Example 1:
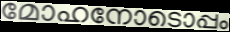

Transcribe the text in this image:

മോഹനോടൊപ്പം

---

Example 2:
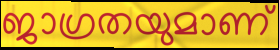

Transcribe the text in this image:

ജാഗ്രതയുമാണ്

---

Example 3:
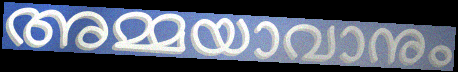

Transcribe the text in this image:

അമ്മയാവാനും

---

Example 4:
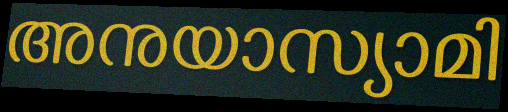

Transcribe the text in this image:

അനുയാസ്യാമി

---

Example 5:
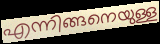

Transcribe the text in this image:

എന്നിങ്ങനെയുള്ള